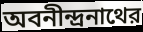
অবনীন্দ্রনাথের